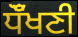
ਧੌਁਖਣੀ